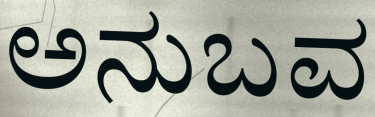
ಅನುಬವ